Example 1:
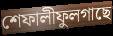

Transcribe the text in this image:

শেফালীফুলগাছে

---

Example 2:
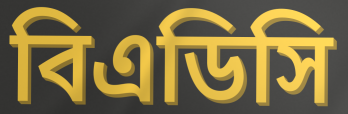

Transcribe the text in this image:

বিএডিসি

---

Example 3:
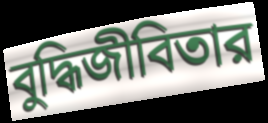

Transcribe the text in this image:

বুদ্ধিজীবিতার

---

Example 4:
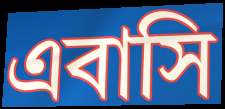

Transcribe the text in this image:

এবাসি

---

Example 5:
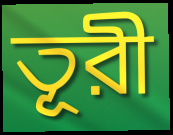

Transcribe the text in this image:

তূরী